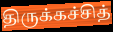
திருக்கச்சித்